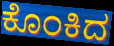
ಕೊಂಕಿದ